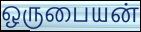
ஒருபையன்